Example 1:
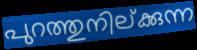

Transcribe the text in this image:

പുറത്തുനില്ക്കുന്ന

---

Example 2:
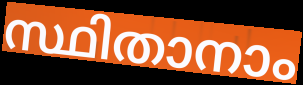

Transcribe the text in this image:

സ്ഥിതാനാം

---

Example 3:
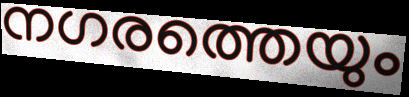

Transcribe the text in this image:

നഗരത്തെയും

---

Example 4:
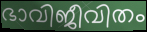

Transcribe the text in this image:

ഭാവിജീവിതം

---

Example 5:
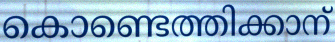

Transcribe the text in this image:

കൊണ്ടെത്തിക്കാന്